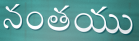
నంతయు